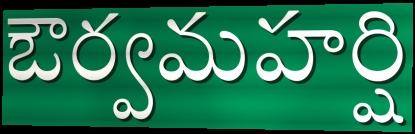
ఔర్వమహర్షి